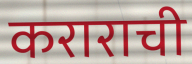
कराराची